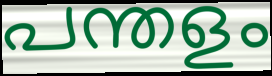
പന്തളം